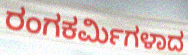
ರಂಗಕರ್ಮಿಗಳಾದ